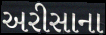
અરીસાના